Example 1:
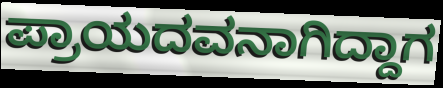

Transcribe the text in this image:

ಪ್ರಾಯದವನಾಗಿದ್ದಾಗ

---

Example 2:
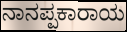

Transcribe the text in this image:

ನಾನಪ್ಪಕಾರಾಯ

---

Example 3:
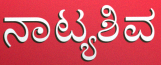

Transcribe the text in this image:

ನಾಟ್ಯಶಿವ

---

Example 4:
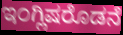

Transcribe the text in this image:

ಇಂಗ್ಲಿಷರೊಡನೆ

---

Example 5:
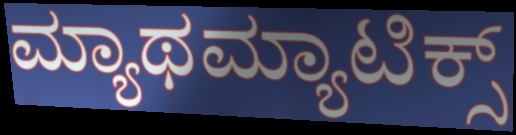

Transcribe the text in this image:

ಮ್ಯಾಥಮ್ಯಾಟಿಕ್ಸ್